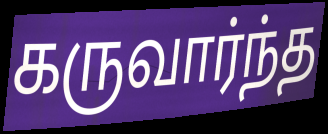
கருவார்ந்த